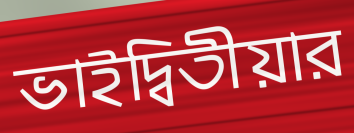
ভাইদ্বিতীয়ার